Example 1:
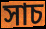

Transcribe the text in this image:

সাচ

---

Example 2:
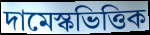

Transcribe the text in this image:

দামেস্কভিত্তিক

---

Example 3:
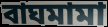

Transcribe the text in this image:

বাঘমামা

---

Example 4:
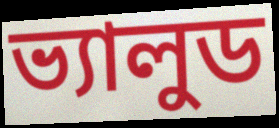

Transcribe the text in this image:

ভ্যালুড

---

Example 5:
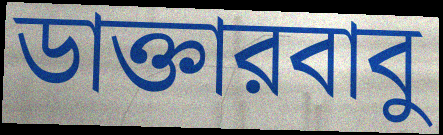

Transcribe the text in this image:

ডাক্তারবাবু